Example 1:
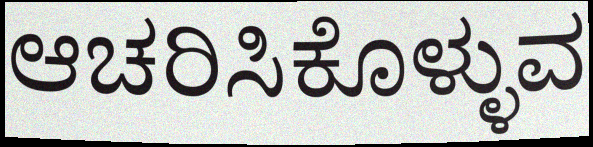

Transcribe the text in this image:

ಆಚರಿಸಿಕೊಳ್ಳುವ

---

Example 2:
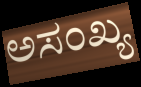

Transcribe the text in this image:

ಅಸಂಖ್ಯ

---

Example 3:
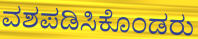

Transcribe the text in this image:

ವಶಪಡಿಸಿಕೊಂಡರು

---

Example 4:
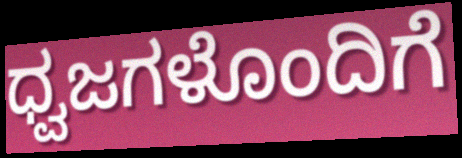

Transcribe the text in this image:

ಧ್ವಜಗಳೊಂದಿಗೆ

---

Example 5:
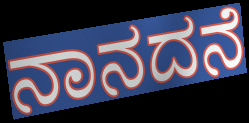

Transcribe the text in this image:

ನಾನದನೆ